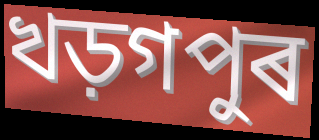
খড়গপুৰ